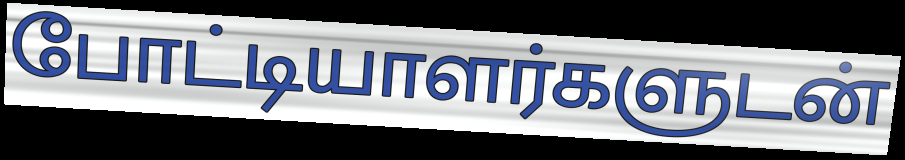
போட்டியாளர்களுடன்